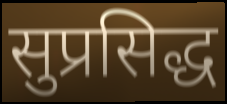
सुप्रसिद्ध